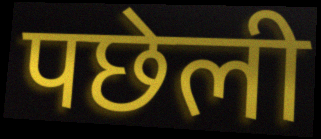
पछेली